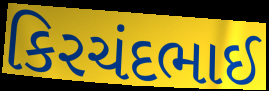
કિરચંદભાઈ